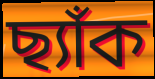
ছ্যাঁক